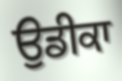
ਉਡੀਕਾ